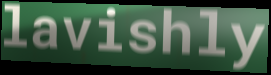
lavishly